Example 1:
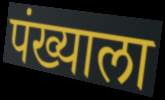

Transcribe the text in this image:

पंख्याला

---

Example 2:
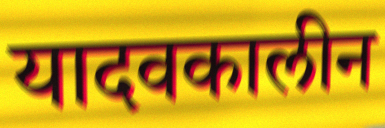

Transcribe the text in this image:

यादवकालीन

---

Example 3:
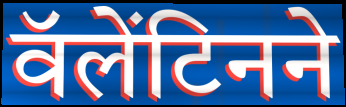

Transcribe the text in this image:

वॅलेंटिनने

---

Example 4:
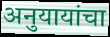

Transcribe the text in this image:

अनुयायांचा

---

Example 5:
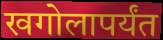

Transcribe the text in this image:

खगोलापर्यंत